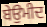
ਬੇਉਮੀਦ